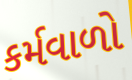
કર્મવાળો